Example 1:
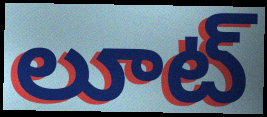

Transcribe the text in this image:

లూట్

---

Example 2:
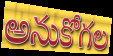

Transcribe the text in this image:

అనుకోగల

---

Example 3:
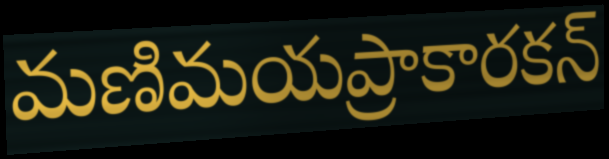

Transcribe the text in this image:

మణిమయప్రాకారకన్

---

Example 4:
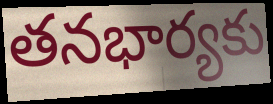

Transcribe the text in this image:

తనభార్యకు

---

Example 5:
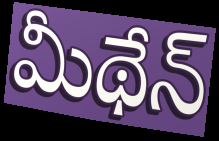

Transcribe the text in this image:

మీథేన్